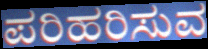
ಪರಿಹರಿಸುವ